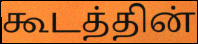
கூடத்தின்